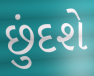
છુંદશે